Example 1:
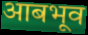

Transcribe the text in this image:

आबभूव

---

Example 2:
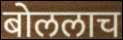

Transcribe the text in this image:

बोललाच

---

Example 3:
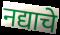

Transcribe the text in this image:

नद्याचे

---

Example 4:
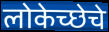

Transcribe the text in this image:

लोकेच्छेचे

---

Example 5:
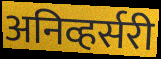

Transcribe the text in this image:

अनिव्हर्सरी